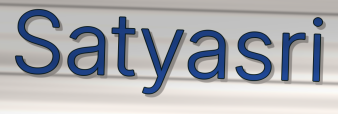
Satyasri